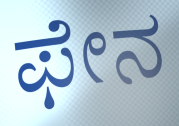
ಫೇನ